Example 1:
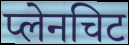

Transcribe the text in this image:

प्लेनचिट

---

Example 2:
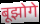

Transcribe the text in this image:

बूझोगे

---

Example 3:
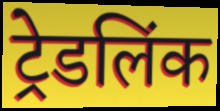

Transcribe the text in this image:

ट्रेडलिंक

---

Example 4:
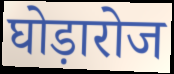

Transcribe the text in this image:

घोड़ारोज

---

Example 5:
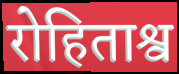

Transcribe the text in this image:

रोहिताश्व